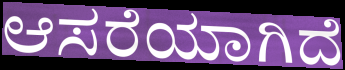
ಆಸರೆಯಾಗಿದೆ